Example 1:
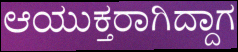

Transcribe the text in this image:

ಆಯುಕ್ತರಾಗಿದ್ದಾಗ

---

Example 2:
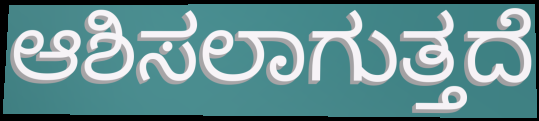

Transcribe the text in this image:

ಆಶಿಸಲಾಗುತ್ತದೆ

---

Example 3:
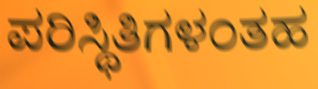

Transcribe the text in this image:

ಪರಿಸ್ಥಿತಿಗಳಂತಹ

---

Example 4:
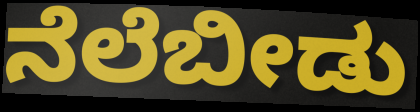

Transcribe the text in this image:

ನೆಲೆಬೀಡು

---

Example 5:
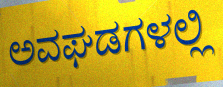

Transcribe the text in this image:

ಅವಘಡಗಳಲ್ಲಿ